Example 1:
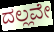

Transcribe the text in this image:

ದಲ್ಲವೇ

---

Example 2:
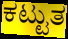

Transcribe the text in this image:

ಕಟ್ಟುತ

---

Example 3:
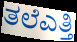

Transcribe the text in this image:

ತಲೆಎತ್ತಿ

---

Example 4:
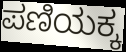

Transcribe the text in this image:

ಪಣಿಯಕ್ಕ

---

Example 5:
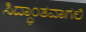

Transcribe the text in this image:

ಸಿದ್ಧಾಂತವಾಗಲಿ